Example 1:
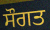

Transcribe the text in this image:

ਸੌਗਤ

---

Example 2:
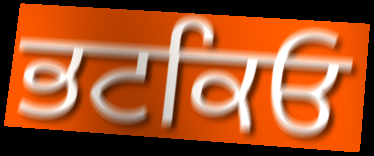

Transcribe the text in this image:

ਭਟਕਿਓ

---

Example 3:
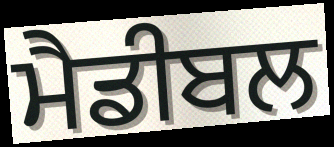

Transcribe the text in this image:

ਮੈਡੀਬਲ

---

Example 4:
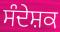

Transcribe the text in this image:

ਸੰਦੇਸ਼ਕ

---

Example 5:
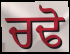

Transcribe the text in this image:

ਚਢੋ